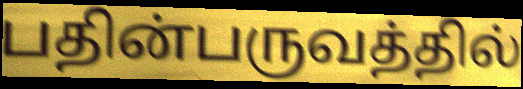
பதின்பருவத்தில்